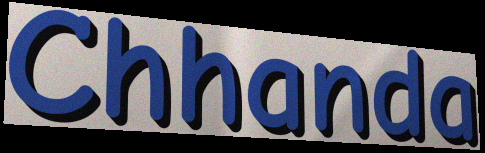
Chhanda